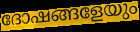
ദോഷങ്ങളേയും